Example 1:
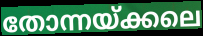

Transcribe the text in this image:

തോന്നയ്ക്കലെ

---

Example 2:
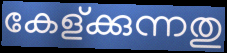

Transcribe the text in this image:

കേള്ക്കുന്നതു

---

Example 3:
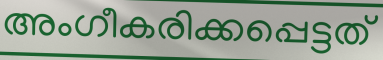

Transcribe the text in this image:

അംഗീകരിക്കപ്പെട്ടത്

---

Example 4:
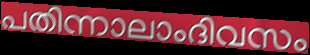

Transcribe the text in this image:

പതിന്നാലാംദിവസം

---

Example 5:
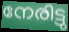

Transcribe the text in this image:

നേരിട്ടു